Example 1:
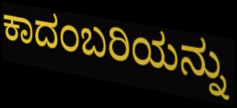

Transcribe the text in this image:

ಕಾದಂಬರಿಯನ್ನು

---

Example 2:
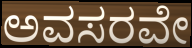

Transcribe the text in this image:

ಅವಸರವೇ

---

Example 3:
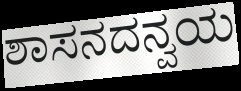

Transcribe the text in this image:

ಶಾಸನದನ್ವಯ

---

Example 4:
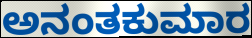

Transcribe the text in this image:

ಅನಂತಕುಮಾರ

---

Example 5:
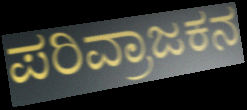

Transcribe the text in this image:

ಪರಿವ್ರಾಜಕನ